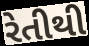
રેતીથી